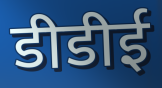
डीडीई